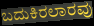
ಬದುಕಿರಲಾರವು